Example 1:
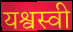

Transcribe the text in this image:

यश्वस्वी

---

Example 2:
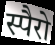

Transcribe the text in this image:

स्पैरो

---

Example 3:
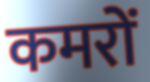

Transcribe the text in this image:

कमरों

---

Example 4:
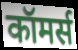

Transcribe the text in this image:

कॉमर्स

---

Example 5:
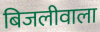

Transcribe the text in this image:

बिजलीवाला